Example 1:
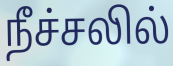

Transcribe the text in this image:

நீச்சலில்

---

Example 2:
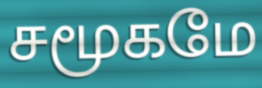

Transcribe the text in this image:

சமூகமே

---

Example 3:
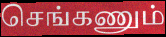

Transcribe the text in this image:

செங்கணும்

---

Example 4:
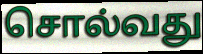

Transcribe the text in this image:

சொல்வது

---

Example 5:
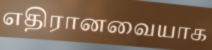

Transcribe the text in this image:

எதிரானவையாக